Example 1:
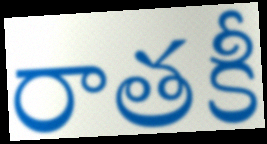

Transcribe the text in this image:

రాతకీ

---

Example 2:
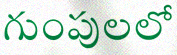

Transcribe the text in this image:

గుంపులలో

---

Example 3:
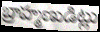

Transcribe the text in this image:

బ్రాహ్మణుడిట్లు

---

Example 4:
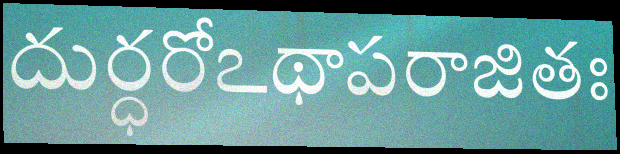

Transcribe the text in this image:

దుర్ధరోఽథాపరాజితః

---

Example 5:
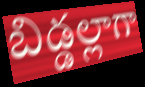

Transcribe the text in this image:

బిడ్డల్లాగా